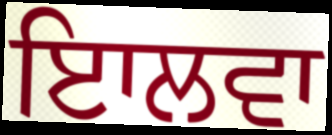
ਇਾਲਵਾ